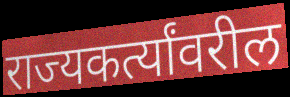
राज्यकर्त्यांवरील